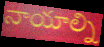
నాయాల్ని